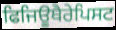
ਫਿਜਿਊਥੈਰੇਪਿਸਟ